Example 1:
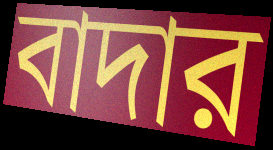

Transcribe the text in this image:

বাদার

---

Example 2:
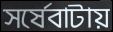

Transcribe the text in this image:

সর্ষেবাটায়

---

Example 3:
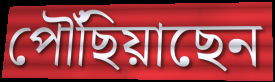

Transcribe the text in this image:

পৌঁছিয়াছেন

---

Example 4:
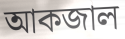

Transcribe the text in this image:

আকজাল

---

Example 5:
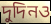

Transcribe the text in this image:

দুদিনও